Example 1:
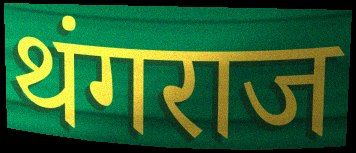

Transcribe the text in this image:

थंगराज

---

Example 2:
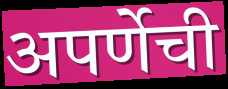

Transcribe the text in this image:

अपर्णेची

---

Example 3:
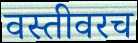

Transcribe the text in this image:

वस्तीवरच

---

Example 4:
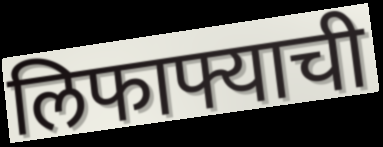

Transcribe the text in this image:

लिफाफ्याची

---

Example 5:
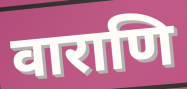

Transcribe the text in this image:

वाराणि